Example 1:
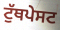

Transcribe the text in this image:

ਟੁੱਥਪੇਸਟ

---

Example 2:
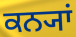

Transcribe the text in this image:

ਕਨ੍ਯਾਂ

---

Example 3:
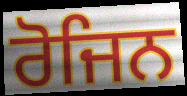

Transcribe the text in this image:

ਰੋਜਿਨ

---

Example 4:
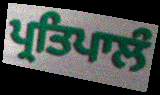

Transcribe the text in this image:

ਪ੍ਰਤਿਪਾਲੰ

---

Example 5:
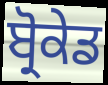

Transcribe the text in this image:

ਬ੍ਰੋਕੇਡ